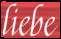
liebe